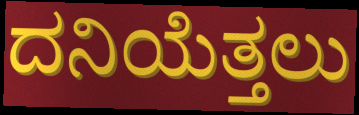
ದನಿಯೆತ್ತಲು